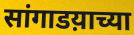
सांगाडय़ाच्या